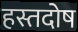
हस्तदोष